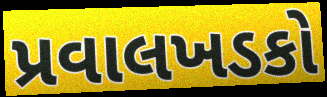
પ્રવાલખડકો